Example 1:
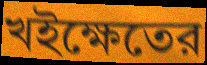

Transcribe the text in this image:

খইক্ষেতের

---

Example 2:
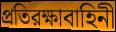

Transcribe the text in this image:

প্রতিরক্ষাবাহিনী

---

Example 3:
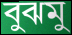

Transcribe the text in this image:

বুঝমু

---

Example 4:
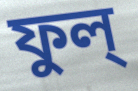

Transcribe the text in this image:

ফুল্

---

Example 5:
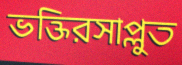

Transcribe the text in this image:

ভক্তিরসাপ্লুত